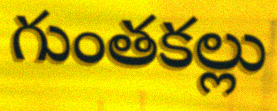
గుంతకల్లు